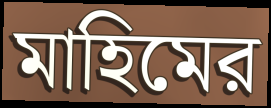
মাহিমের